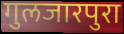
गुलजारपुरा